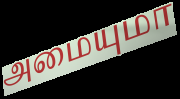
அமையுமா